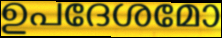
ഉപദേശമോ